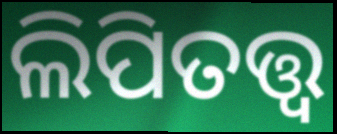
ଲିପିତତ୍ତ୍ୱ